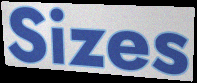
Sizes